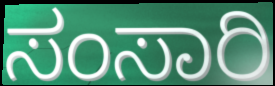
ಸಂಸಾರಿ